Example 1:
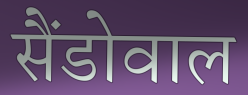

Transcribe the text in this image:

सैंडोवाल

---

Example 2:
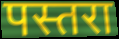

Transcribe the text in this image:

पस्तरा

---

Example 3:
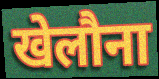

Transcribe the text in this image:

खेलौना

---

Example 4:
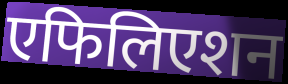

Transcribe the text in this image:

एफिलिएशन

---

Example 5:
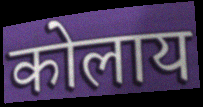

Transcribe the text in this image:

कोलाय